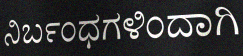
ನಿರ್ಬಂಧಗಳಿಂದಾಗಿ